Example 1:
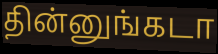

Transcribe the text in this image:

தின்னுங்கடா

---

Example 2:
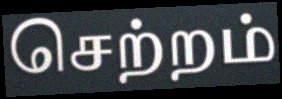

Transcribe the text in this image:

செற்றம்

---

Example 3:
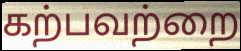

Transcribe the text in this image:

கற்பவற்றை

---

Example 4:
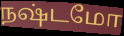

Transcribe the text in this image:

நஷ்டமோ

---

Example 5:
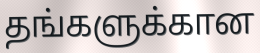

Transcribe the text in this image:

தங்களுக்கான